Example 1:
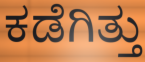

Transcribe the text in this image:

ಕಡೆಗಿತ್ತು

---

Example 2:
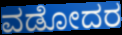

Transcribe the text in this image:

ವಡೋದರ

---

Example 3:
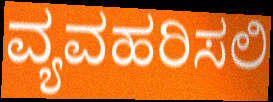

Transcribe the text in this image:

ವ್ಯವಹರಿಸಲಿ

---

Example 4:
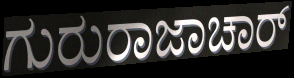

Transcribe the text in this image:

ಗುರುರಾಜಾಚಾರ್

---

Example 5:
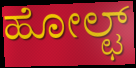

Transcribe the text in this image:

ಹೋಲ್ಟ್